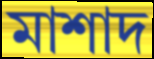
মাশাদ